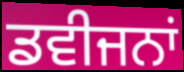
ਡਵੀਜਨਾਂ